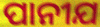
ପାନୀଯ